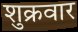
शुक्रवार